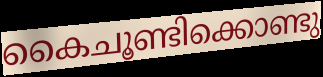
കൈചൂണ്ടിക്കൊണ്ടു